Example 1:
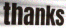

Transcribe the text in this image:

thanks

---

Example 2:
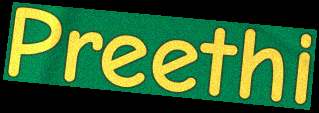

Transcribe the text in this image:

Preethi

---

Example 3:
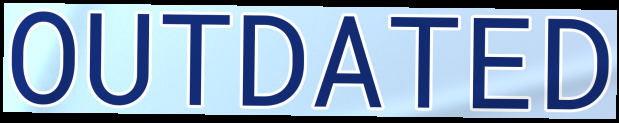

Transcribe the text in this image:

OUTDATED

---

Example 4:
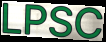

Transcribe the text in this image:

LPSC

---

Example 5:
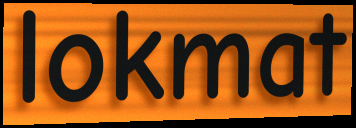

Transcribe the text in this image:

lokmat